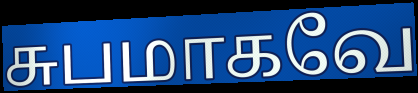
சுபமாகவே